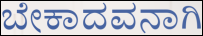
ಬೇಕಾದವನಾಗಿ